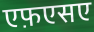
एफ़एसए